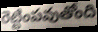
రెట్టింపవుతోంది